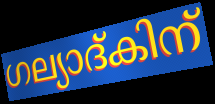
ഗല്യാദ്കിന്